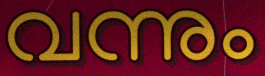
വന്നും